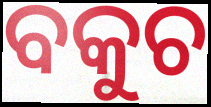
ବକୁଚ